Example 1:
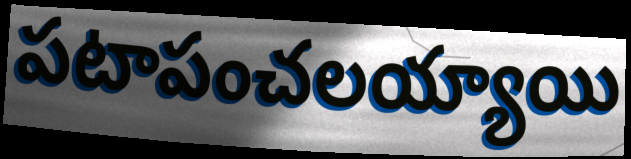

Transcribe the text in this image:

పటాపంచలయ్యాయి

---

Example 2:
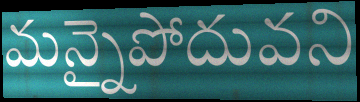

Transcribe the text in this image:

మన్నైపోదువని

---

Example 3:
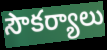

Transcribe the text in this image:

సౌకర్యాలు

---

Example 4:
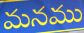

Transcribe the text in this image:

మనము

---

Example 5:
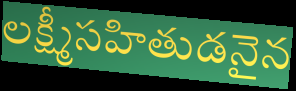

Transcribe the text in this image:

లక్ష్మీసహితుడనైన